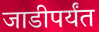
जाडीपर्यंत